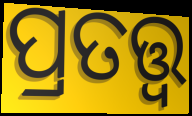
ପ୍ରତତ୍ତ୍ୱ